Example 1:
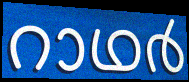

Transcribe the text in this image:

റാഥർ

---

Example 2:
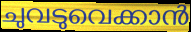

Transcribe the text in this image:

ചുവടുവെക്കാൻ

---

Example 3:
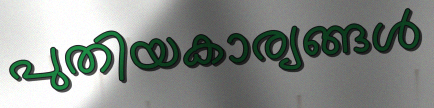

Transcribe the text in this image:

പുതിയകാര്യങ്ങൾ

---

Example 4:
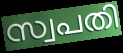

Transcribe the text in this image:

സ്വപതി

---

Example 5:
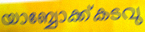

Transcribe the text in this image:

യാബ്ബോക്ക്കടവു